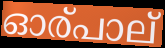
ഓര്പാല്